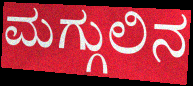
ಮಗ್ಗುಲಿನ